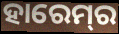
ହାରେମ୍‍ର